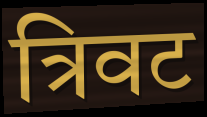
त्रिवट